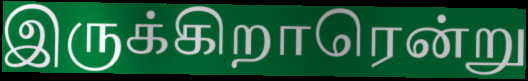
இருக்கிறாரென்று